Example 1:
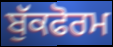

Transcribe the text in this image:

ਬੁੱਕਫੋਰਮ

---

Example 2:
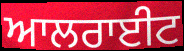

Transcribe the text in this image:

ਆਲਰਾਈਟ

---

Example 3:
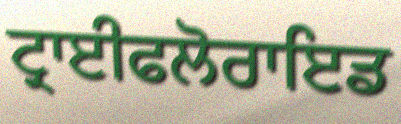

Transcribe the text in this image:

ਟ੍ਰਾਈਫਲੋਰਾਇਡ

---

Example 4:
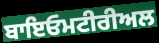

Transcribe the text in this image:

ਬਾਇਓਮਟੀਰੀਅਲ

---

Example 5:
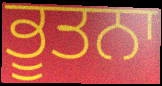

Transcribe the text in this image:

ਭੂਤਨਾ